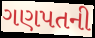
ગણપતની